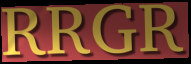
RRGR